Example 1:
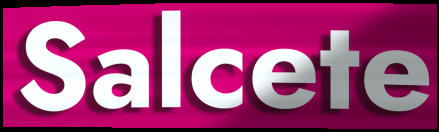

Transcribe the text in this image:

Salcete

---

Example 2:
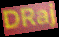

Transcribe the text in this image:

DRaj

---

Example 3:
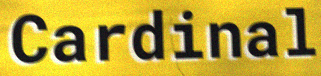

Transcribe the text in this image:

Cardinal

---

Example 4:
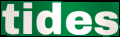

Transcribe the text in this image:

tides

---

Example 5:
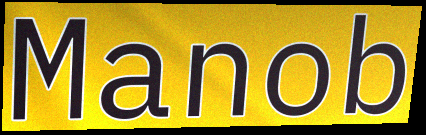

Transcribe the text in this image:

Manob